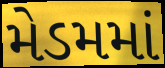
મેડમમાં